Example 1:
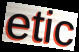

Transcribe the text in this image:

etic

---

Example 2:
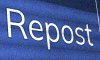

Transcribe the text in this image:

Repost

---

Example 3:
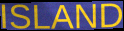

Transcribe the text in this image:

ISLAND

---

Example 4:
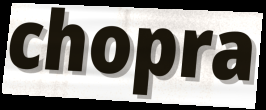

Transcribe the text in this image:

chopra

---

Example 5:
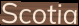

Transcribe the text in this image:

Scotia